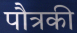
पौत्रकी